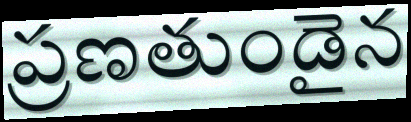
ప్రణతుండైన